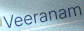
Veeranam